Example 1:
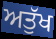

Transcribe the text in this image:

ਅਤੁੱਖ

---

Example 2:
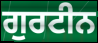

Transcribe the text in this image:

ਗੁਰਟੀਨ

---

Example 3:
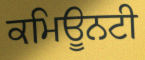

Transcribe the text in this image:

ਕਮਿਊਨਟੀ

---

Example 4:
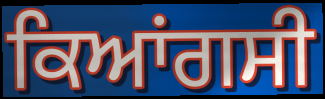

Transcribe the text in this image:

ਕਿਆਂਗਸੀ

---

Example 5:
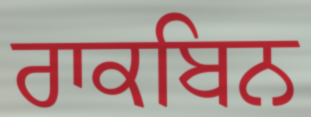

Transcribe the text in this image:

ਰਾਕਬਿਨ